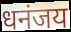
धनंजय